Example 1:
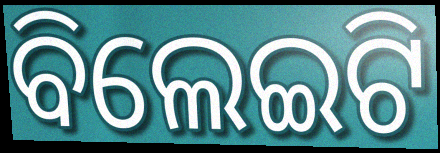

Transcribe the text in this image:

ବିଲେଇଟି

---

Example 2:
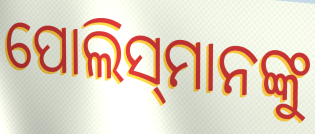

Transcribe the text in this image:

ପୋଲିସ୍‌ମାନଙ୍କୁ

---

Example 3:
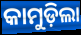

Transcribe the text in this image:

କାମୁଡ଼ିଲା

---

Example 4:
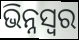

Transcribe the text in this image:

ଭିନ୍ନସ୍ବର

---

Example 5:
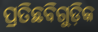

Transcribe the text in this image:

ପ୍ରତିଛବିଗୁଡ଼ିକ